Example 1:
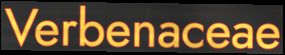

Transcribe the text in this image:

Verbenaceae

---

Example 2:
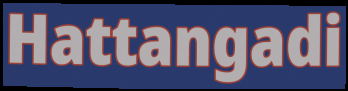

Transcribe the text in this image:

Hattangadi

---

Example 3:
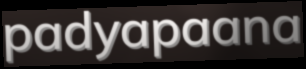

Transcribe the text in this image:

padyapaana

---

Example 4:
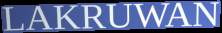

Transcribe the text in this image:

LAKRUWAN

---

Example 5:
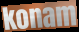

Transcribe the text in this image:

konam